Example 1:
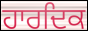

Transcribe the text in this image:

ਹਾਰਦਿਕ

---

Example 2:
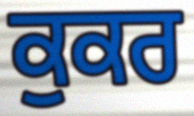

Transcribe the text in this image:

ਕੁਕਰ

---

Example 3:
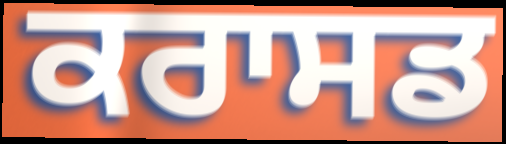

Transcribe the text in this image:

ਕਰਾਸਡ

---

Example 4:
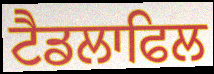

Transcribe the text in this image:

ਟੈਡਲਾਫਿਲ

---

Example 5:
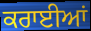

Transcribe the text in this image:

ਕਰਾਈਆਂ